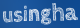
usingha